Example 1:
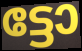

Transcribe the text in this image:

ട്ടോ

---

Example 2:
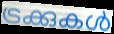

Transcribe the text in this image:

ട്രക്കുകൾ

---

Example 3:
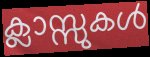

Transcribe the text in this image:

ക്ലാസ്സുകൾ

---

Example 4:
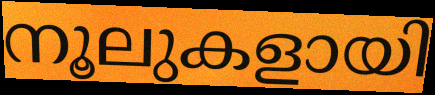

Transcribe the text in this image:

നൂലുകളായി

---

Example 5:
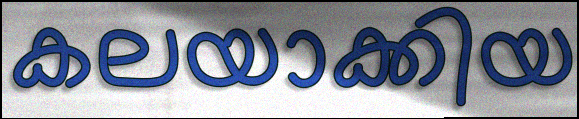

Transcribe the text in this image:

കലയാക്കിയ